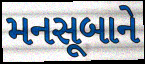
મનસૂબાને